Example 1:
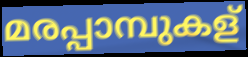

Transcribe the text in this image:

മരപ്പാമ്പുകള്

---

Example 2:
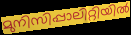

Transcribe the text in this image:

മുനിസിപ്പാലിറ്റിയിൽ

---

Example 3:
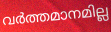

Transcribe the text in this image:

വർത്തമാനമില്ല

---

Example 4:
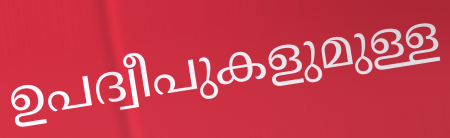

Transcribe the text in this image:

ഉപദ്വീപുകളുമുള്ള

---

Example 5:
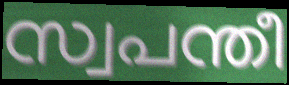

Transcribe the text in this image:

സ്വപന്തീ